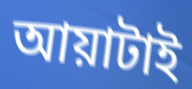
আয়াটাই